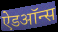
ऐडऑन्स